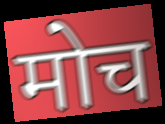
मोच